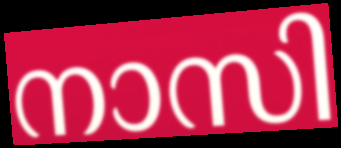
നാസി